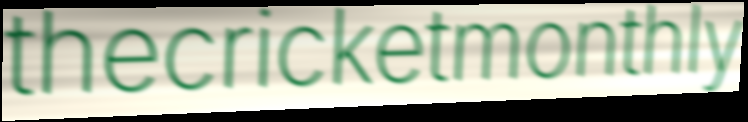
thecricketmonthly